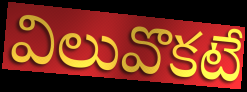
విలువొకటే